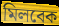
মিলবেক